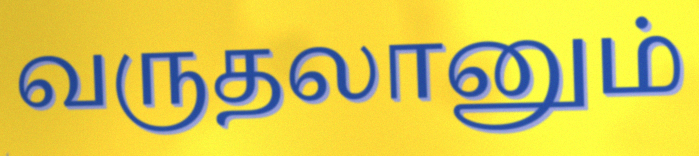
வருதலானும்